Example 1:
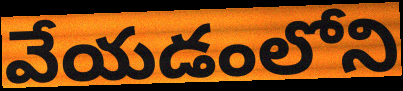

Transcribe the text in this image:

వేయడంలోని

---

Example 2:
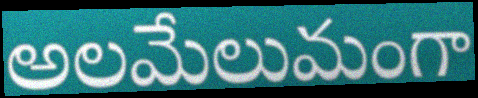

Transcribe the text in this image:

అలమేలుమంగా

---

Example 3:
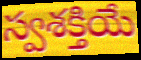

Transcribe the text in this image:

స్వశక్తియే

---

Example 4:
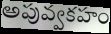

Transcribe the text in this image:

అపువ్వకహం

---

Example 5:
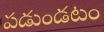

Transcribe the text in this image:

పడుండటం